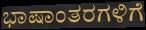
ಭಾಷಾಂತರಗಳಿಗೆ